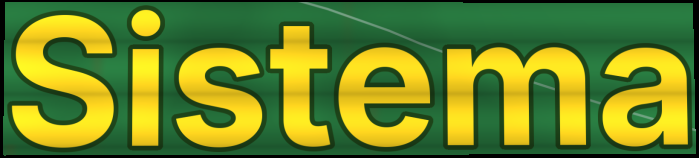
Sistema